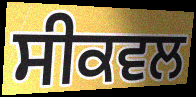
ਸੀਕਵਲ